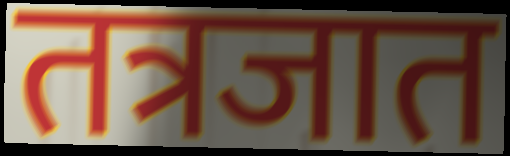
तत्रजात